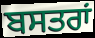
ਬਸਤਰਾਂ